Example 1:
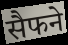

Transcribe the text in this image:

सैफने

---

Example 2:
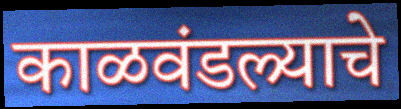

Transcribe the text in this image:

काळवंडल्याचे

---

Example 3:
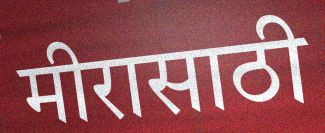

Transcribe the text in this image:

मीरासाठी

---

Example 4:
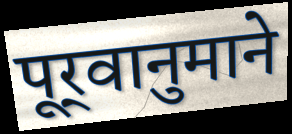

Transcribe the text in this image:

पूर्वानुमाने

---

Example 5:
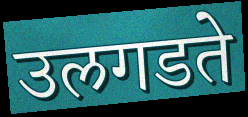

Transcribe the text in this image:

उलगडते